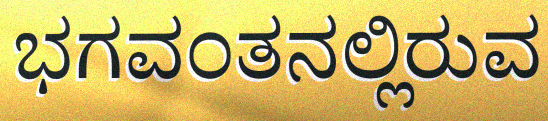
ಭಗವಂತನಲ್ಲಿರುವ